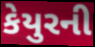
કેયુરની